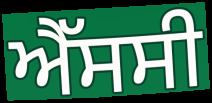
ਐੱਸਸੀ